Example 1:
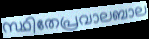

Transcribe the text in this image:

സ്ഥിതേപ്രവാലബാല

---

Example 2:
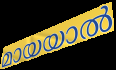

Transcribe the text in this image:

മായയാൽ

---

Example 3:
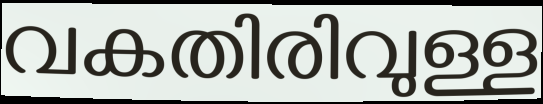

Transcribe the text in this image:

വകതിരിവുള്ള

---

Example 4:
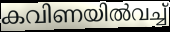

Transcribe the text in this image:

കവിണയിൽവച്ച്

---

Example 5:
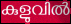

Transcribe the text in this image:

കുളുവിൽ